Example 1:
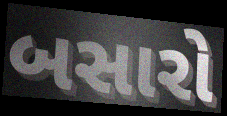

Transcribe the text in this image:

બસારો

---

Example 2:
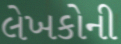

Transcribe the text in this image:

લેખકોની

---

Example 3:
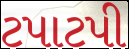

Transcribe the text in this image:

ટપાટપી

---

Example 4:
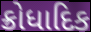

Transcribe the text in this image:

ક્રોધાદિક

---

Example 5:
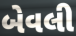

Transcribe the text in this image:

બેવલી